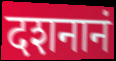
दशनानं